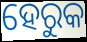
ହେରୁକ